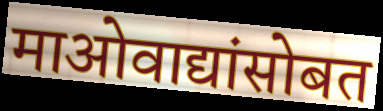
माओवाद्यांसोबत